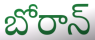
బోరాన్